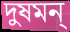
দুষমন্